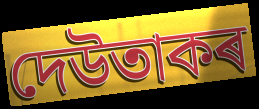
দেউতাকৰ